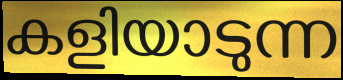
കളിയാടുന്ന